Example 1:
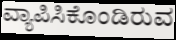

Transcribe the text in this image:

ವ್ಯಾಪಿಸಿಕೊಂಡಿರುವ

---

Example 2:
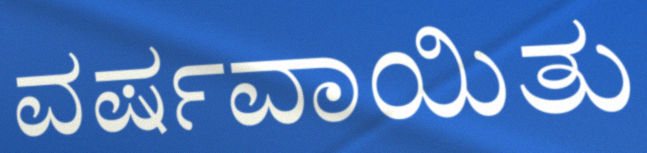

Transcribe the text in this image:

ವರ್ಷವಾಯಿತು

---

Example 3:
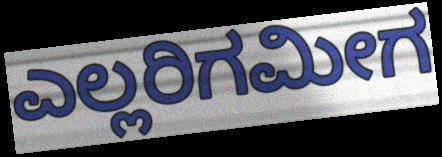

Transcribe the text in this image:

ಎಲ್ಲರಿಗಮೀಗ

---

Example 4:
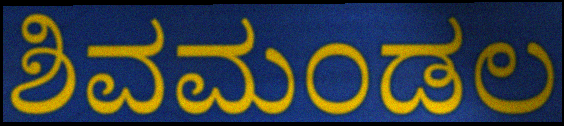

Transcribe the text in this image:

ಶಿವಮಂಡಲ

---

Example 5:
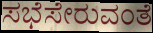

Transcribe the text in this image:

ಸಭೆಸೇರುವಂತೆ